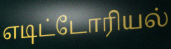
எடிட்டோரியல்